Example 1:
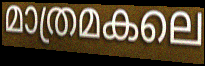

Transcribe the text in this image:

മാത്രമകലെ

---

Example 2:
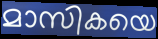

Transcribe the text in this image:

മാസികയെ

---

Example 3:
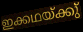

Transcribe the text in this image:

ഇക്കഥയ്ക്കു്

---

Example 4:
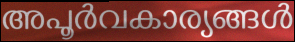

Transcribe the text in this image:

അപൂർവകാര്യങ്ങൾ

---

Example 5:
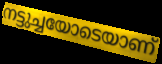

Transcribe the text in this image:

നട്ടുച്ചയോടെയാണ്